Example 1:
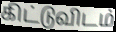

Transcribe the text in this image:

கிட்டுவிடம்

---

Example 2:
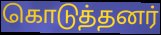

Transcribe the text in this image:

கொடுத்தனர்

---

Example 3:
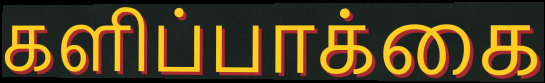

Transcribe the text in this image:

களிப்பாக்கை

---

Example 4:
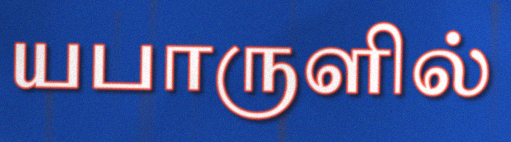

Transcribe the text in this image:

யபாருளில்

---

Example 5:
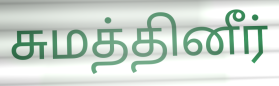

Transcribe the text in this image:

சுமத்தினீர்